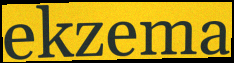
ekzema